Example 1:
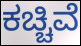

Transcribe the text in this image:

ಕಚ್ಚಿವೆ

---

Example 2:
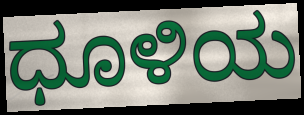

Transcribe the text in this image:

ಧೂಳಿಯ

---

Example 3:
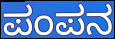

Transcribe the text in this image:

ಪಂಪನ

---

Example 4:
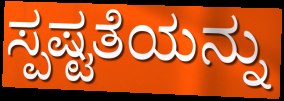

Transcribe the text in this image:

ಸ್ಪಷ್ಟತೆಯನ್ನು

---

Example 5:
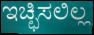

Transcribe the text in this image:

ಇಚ್ಛಿಸಲಿಲ್ಲ